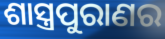
ଶାସ୍ତ୍ରପୁରାଣର